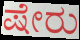
ಷೇರು